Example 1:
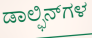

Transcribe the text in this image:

ಡಾಲ್ಫಿನ್‌ಗಳ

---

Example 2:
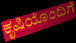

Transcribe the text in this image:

ಕೃಷಿಯೊಂದಿಗೆ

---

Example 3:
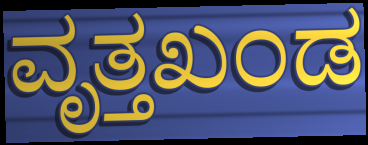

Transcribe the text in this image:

ವೃತ್ತಖಂಡ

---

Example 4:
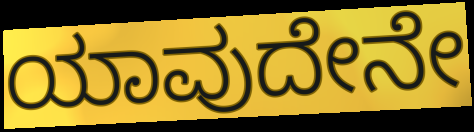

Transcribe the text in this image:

ಯಾವುದೇನೇ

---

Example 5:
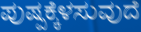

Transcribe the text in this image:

ಪುಷ್ಪಕ್ಕೆಳಸುವುದೆ